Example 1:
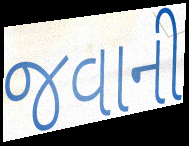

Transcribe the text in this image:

જવાની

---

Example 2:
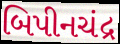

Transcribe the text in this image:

બિપીનચંદ્ર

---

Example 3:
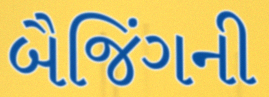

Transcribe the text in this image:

બૈજિંગની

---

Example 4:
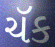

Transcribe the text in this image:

ચૅક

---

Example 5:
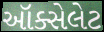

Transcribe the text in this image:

ઑક્સેલેટ